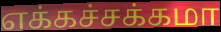
எக்கச்சக்கமா